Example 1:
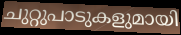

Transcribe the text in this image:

ചുറ്റുപാടുകളുമായി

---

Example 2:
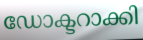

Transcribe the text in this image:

ഡോക്ടറാക്കി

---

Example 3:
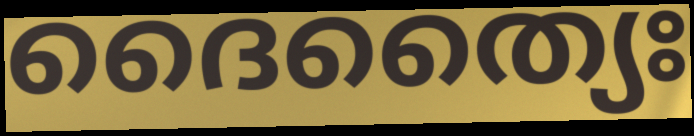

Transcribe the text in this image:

ദൈത്യൈഃ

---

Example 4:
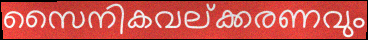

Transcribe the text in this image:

സൈനികവല്ക്കരണവും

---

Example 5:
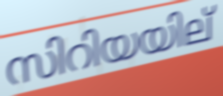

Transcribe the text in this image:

സിറിയയില്